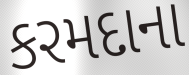
કરમદાના